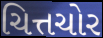
ચિત્તચોર